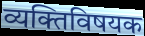
व्यक्तिविषयक